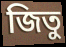
জিতু